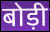
बोड़ी